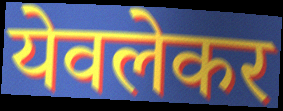
येवलेकर